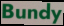
Bundy